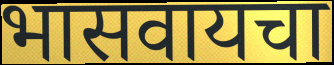
भासवायचा